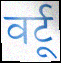
वर्टू